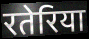
रतेरिया